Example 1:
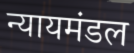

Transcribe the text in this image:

न्यायमंडल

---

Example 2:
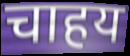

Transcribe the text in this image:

चाहय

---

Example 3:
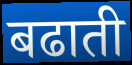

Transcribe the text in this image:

बढाती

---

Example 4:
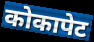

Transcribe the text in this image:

कोकापेट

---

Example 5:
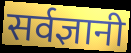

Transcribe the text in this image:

सर्वज्ञानी